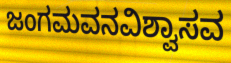
ಜಂಗಮವನವಿಶ್ವಾಸವ